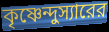
কৃষ্ণেন্দুস্যারের